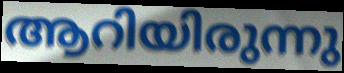
ആറിയിരുന്നു